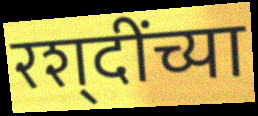
रश्दींच्या